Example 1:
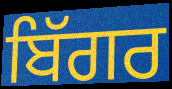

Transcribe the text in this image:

ਬਿੱਗਰ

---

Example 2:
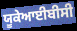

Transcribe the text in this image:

ਯੂਕੇਆਈਬੀਸੀ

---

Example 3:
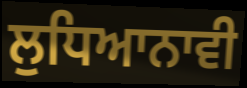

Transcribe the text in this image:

ਲੁਧਿਆਨਾਵੀ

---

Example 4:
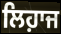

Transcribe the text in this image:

ਲਿਹ਼ਾਜ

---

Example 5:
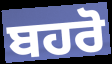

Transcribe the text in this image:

ਬਹਰੋ